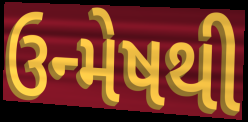
ઉન્મેષથી